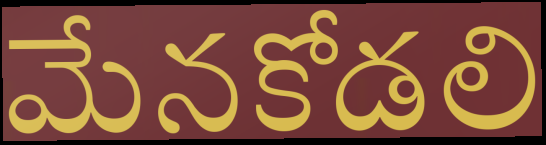
మేనకోడలి